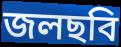
জলছবি